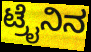
ಟ್ರೈನಿನ